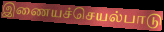
இணையச்செயல்பாடு